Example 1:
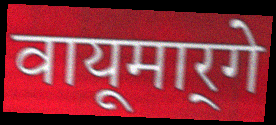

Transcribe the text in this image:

वायूमार्गे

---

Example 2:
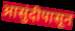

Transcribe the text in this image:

आसुंदीपासून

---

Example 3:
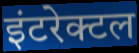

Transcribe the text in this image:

इंटरेक्टल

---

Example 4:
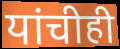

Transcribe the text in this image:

यांचीही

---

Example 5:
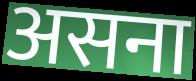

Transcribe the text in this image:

असना